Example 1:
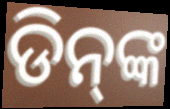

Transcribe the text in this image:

ଡିନ୍‍ଙ୍କ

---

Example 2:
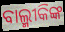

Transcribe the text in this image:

ବାଲ୍ମୀକିଙ୍କ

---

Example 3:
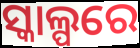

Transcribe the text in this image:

ସ୍କାଲ୍ପରେ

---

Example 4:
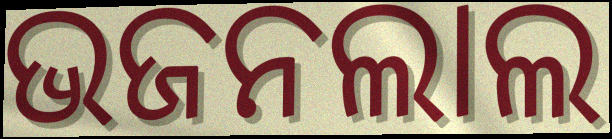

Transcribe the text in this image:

ଭଜନଲାଲ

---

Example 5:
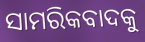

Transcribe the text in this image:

ସାମରିକବାଦକୁ